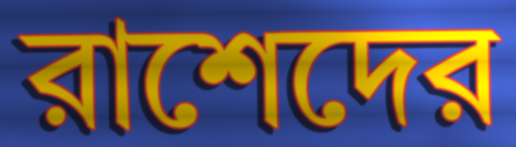
রাশেদের